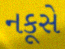
નકૂસે